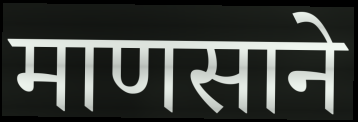
माणसाने